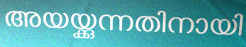
അയയ്ക്കുന്നതിനായി